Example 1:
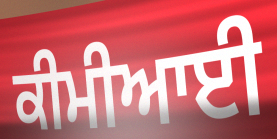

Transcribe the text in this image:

ਕੀਮੀਆਈ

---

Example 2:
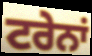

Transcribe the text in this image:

ਟਰੇਨਾਂ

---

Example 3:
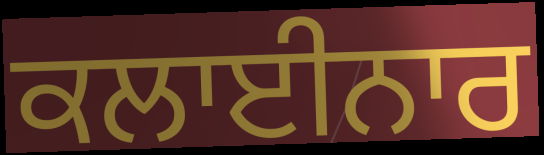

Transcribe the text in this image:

ਕਲਾਈਨਾਰ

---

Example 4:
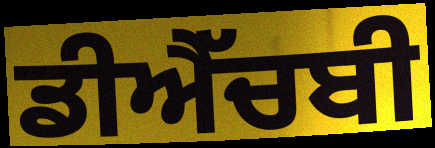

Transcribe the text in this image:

ਡੀਐੱਚਬੀ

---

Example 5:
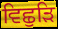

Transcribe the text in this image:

ਵਿਛੁੜਿ